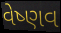
વેષ્ણવ